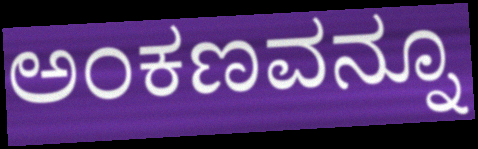
ಅಂಕಣವನ್ನೂ